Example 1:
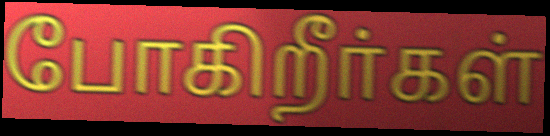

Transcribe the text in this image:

போகிறீர்கள்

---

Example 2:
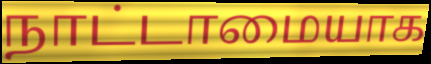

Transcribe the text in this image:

நாட்டாமையாக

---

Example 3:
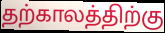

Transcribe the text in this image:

தற்காலத்திற்கு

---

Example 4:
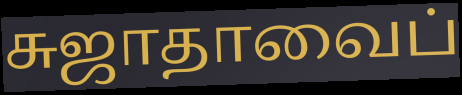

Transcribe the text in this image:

சுஜாதாவைப்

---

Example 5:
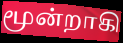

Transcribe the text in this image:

மூன்றாகி